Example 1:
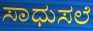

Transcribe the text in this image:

ಸಾಧುಸಲೆ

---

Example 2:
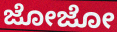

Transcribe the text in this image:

ಜೋಜೋ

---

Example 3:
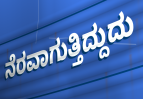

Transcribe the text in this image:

ನೆರವಾಗುತ್ತಿದ್ದುದು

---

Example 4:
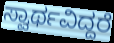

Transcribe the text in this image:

ಸ್ವಾರ್ಥವಿದ್ದರೆ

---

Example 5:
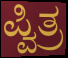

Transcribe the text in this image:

ಪ್ವಿತ್ರ